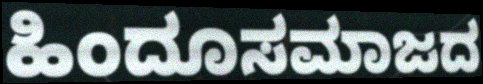
ಹಿಂದೂಸಮಾಜದ